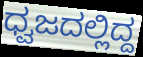
ಧ್ವಜದಲ್ಲಿದ್ದ